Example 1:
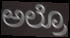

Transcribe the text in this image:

ಅಲ್ರೊ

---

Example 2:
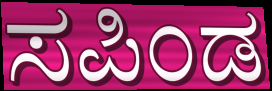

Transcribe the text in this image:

ಸಪಿಂಡ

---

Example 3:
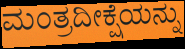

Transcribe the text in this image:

ಮಂತ್ರದೀಕ್ಷೆಯನ್ನು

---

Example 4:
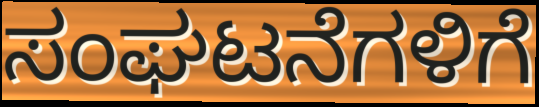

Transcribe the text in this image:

ಸಂಘಟನೆಗಳಿಗೆ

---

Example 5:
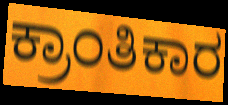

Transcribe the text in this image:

ಕ್ರಾಂತಿಕಾರ